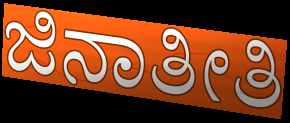
ಜಿನಾತೀತಿ